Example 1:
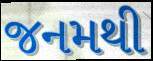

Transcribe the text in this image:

જનમથી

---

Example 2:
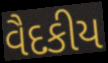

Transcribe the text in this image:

વૈદકીય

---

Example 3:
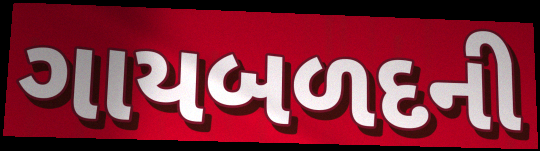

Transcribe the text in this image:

ગાયબળદની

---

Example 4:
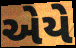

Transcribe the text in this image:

એયે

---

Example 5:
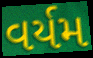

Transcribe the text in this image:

વર્યમ